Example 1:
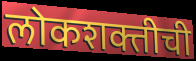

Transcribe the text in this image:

लोकशक्तीची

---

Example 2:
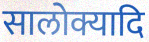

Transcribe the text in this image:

सालोक्यादि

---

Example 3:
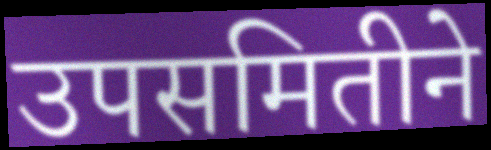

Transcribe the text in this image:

उपसमितीने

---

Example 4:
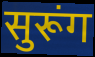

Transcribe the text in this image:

सुरूंग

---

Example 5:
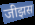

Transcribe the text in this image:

जीझस